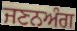
ਜਣਨਅੰਗ